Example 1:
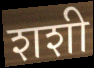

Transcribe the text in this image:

शशी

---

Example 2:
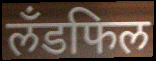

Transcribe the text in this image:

लँडफिल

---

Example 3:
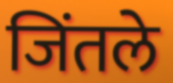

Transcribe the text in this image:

जिंतले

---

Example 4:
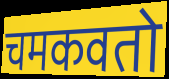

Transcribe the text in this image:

चमकवतो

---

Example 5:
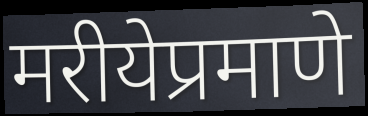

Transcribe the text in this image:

मरीयेप्रमाणे